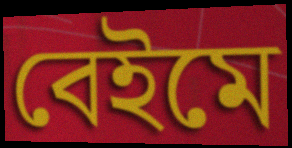
বেইমে